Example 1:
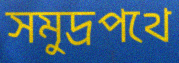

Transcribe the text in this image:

সমুদ্রপথে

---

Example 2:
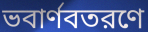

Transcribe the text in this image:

ভবার্ণবতরণে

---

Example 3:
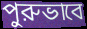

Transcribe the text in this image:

পুরুভাবে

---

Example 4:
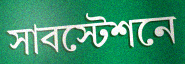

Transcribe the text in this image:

সাবস্টেশনে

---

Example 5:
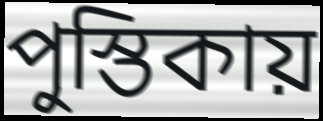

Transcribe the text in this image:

পুস্তিকায়